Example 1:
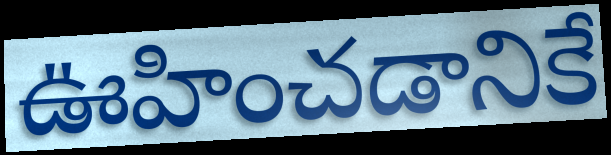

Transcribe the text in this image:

ఊహించడానికే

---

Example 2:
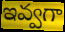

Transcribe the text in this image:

ఇవ్వగా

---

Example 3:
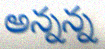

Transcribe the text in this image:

అన్నన్న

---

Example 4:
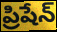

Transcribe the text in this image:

ప్రిషేన్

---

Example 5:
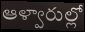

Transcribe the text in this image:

ఆళ్వారుల్లో